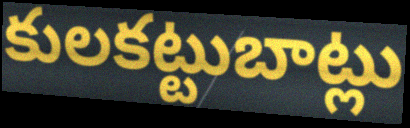
కులకట్టుబాట్లు